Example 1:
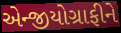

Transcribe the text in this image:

એન્જીયોગ્રાફીને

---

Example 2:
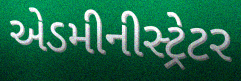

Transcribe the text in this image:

એડમીનીસ્ટ્રેટર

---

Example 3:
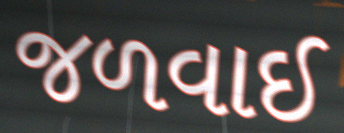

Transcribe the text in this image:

જળવાઈ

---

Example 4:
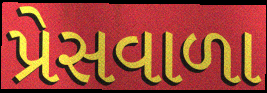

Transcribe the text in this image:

પ્રેસવાળા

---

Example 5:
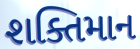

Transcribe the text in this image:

શક્તિમાન